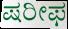
ಷರೀಫ